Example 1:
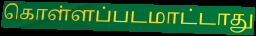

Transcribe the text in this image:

கொள்ளப்படமாட்டாது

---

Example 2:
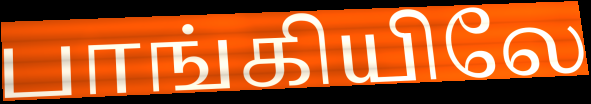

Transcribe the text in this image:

பாங்கியிலே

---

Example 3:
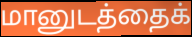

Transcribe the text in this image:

மானுடத்தைக்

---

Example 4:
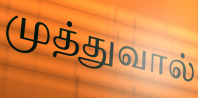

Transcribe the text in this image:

முத்துவால்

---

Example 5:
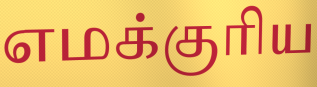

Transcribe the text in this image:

எமக்குரிய